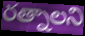
రత్నాలని